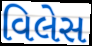
વિલેસ